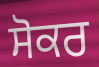
ਸੋਕਰ